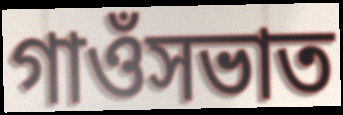
গাওঁসভাত